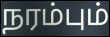
நரம்பும்